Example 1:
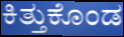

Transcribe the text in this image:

ಕಿತ್ತುಕೊಂಡ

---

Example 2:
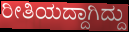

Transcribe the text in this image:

ರೀತಿಯದ್ದಾಗಿದ್ದು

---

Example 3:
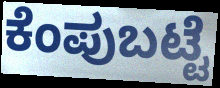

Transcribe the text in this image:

ಕೆಂಪುಬಟ್ಟೆ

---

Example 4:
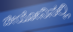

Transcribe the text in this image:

ಚೀಯೋನಿನಲ್ಲಿ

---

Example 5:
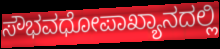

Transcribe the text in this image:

ಸೌಭವಧೋಪಾಖ್ಯಾನದಲ್ಲಿ